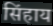
सिंहाय